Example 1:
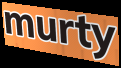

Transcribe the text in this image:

murty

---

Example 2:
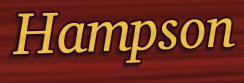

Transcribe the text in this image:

Hampson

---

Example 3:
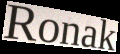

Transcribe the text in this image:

Ronak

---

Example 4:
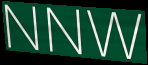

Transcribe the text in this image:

NNW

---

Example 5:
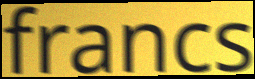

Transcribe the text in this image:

francs